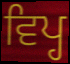
ਵਿਪ੍ਹ